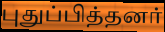
புதுப்பித்தனர்